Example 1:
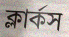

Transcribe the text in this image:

ক্লার্কস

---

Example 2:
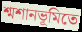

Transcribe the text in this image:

শ্মশানভূমিতে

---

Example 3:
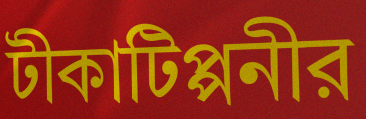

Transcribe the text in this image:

টীকাটিপ্পনীর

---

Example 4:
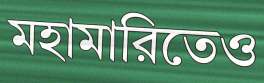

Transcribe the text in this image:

মহামারিতেও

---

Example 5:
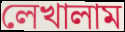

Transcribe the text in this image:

লেখালাম